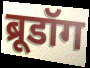
ब्रूडॉग